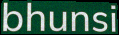
bhunsi